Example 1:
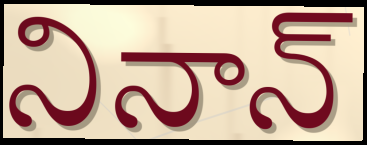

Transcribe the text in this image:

నినాన్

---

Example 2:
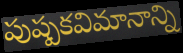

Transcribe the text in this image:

పుష్పకవిమానాన్ని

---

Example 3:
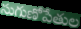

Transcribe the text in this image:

సుగుణోపేతుల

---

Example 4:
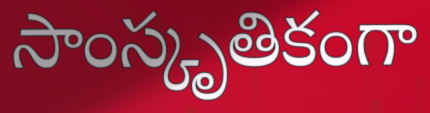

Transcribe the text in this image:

సాంస్కృతికంగా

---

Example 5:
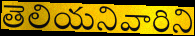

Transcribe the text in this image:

తెలియనివారిని